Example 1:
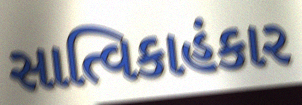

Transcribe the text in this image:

સાત્વિકાહંકાર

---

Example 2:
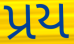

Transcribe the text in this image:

પ્રય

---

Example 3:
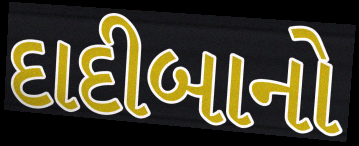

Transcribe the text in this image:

દાદીબાનો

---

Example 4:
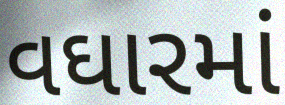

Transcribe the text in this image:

વઘારમાં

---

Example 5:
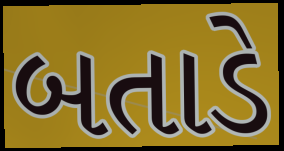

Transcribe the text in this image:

બતાડે